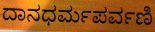
ದಾನಧರ್ಮಪರ್ವಣಿ